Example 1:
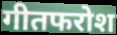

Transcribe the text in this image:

गीतफरोश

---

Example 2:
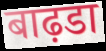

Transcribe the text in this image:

बाढ़डा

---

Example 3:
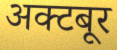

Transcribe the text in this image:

अक्टबूर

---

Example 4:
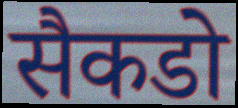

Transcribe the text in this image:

सैकडो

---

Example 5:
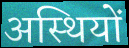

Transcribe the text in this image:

अस्थियों